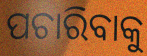
ପଚାରିବାକୁ